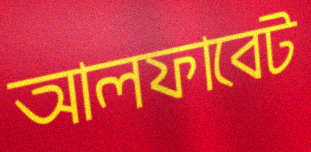
আলফাবেট